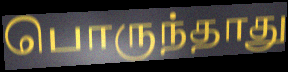
பொருந்தாது